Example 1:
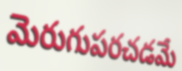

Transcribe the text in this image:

మెరుగుపరచడమే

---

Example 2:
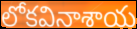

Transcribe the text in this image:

లోకవినాశాయ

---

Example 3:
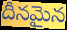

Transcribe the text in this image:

దీనమైన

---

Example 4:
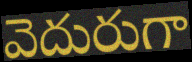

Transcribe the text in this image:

వెదురుగా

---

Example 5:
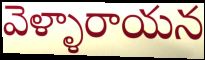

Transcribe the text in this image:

వెళ్ళారాయన